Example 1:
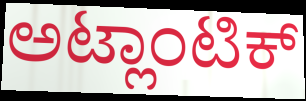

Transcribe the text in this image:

ಅಟ್ಲಾಂಟಿಕ್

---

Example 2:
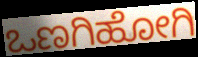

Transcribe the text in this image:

ಒಣಗಿಹೋಗಿ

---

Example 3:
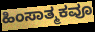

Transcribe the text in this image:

ಹಿಂಸಾತ್ಮಕವೂ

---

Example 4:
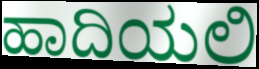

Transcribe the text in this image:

ಹಾದಿಯಲಿ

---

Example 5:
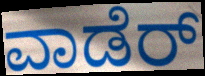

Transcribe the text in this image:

ವಾಡೆರ್